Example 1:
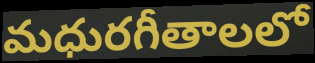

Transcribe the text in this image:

మధురగీతాలలో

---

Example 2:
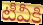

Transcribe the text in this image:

టీవీకి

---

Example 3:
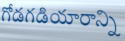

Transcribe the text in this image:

గోడగడియారాన్ని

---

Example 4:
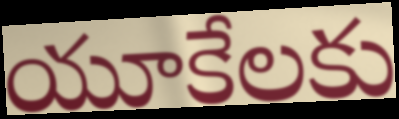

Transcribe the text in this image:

యూకేలకు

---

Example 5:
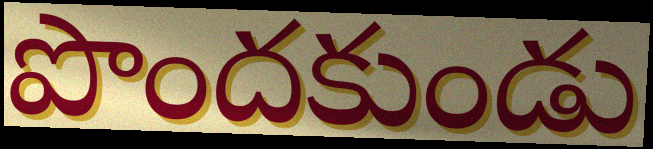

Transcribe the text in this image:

పొందకుండు